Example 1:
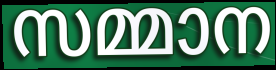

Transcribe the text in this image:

സമ്മാന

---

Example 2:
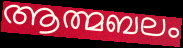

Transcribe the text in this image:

ആത്മബലം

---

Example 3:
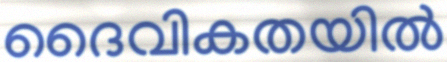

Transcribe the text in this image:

ദൈവികതയിൽ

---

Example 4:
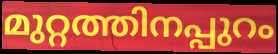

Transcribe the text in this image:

മുറ്റത്തിനപ്പുറം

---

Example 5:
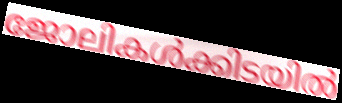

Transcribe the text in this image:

ജോലികൾക്കിടയിൽ